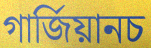
গাৰ্জিয়ানচ